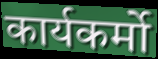
कार्यकर्मो